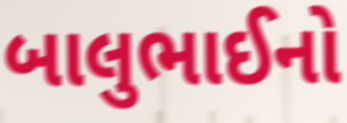
બાલુભાઈનો